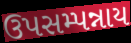
ઉપસમ્પન્નાય